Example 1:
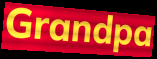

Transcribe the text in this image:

Grandpa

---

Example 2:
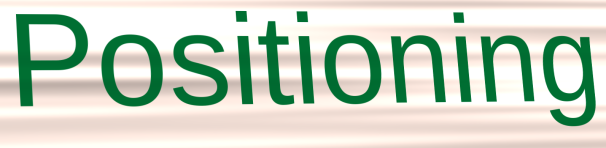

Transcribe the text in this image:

Positioning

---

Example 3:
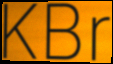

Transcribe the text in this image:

KBr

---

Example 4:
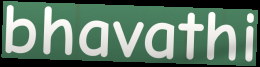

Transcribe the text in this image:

bhavathi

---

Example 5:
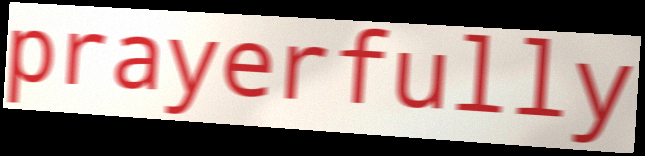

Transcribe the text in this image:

prayerfully